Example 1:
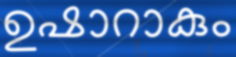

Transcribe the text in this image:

ഉഷാറാകും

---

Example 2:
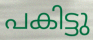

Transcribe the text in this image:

പകിട്ടു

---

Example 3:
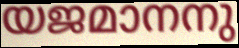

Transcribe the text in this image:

യജമാനനു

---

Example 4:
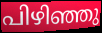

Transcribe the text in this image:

പിഴിഞ്ഞു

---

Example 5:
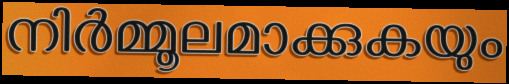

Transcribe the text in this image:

നിർമ്മൂലമാക്കുകയും